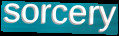
sorcery